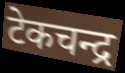
टेकचन्द्र